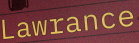
Lawrance